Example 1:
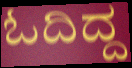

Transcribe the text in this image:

ಓದಿದ್ದ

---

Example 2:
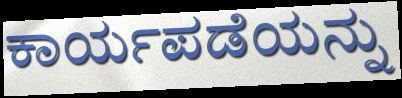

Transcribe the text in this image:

ಕಾರ್ಯಪಡೆಯನ್ನು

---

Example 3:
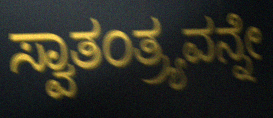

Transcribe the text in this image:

ಸ್ವಾತಂತ್ರ್ಯವನ್ನೇ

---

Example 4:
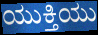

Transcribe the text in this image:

ಯುಕ್ತಿಯು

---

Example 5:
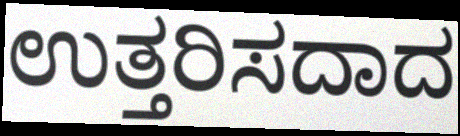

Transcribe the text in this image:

ಉತ್ತರಿಸದಾದ